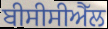
ਬੀਸੀਸੀਐੱਲ